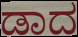
ಡಾದ